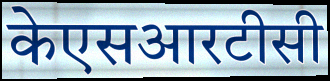
केएसआरटीसी